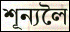
শূন্যলৈ